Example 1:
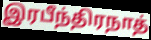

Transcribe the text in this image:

இரபீந்திரநாத்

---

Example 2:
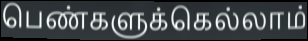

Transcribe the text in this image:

பெண்களுக்கெல்லாம்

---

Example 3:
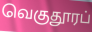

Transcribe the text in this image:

வெகுதூரப்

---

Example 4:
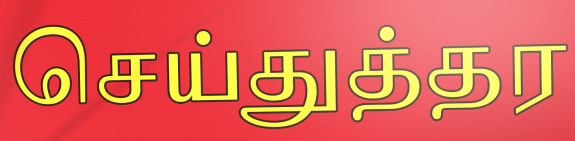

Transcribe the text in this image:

செய்துத்தர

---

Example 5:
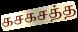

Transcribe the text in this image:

கசகசத்த